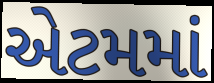
એટમમાં